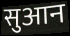
सुआन